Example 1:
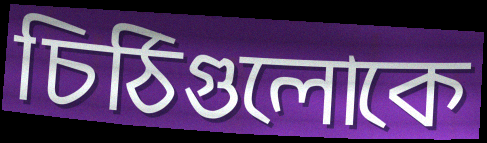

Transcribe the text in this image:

চিঠিগুলোকে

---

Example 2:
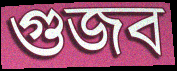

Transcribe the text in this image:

গুজব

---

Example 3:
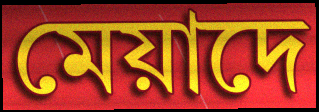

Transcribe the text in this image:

মেয়াদে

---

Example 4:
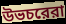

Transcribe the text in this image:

উভচরেরা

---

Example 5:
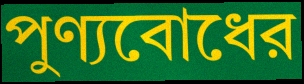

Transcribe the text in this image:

পুণ্যবোধের